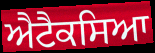
ਐਟੈਕਸਿਆ